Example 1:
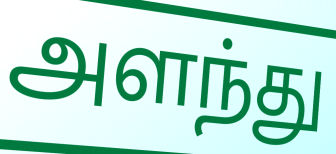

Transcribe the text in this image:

அளந்து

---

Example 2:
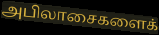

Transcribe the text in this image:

அபிலாசைகளைக்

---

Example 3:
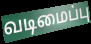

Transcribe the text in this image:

வடிமைப்பு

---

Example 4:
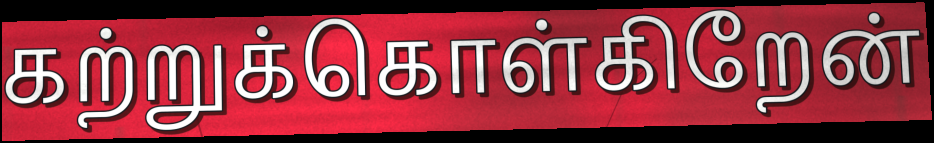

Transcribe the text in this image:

கற்றுக்கொள்கிறேன்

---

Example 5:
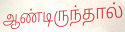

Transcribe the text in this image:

ஆண்டிருந்தால்